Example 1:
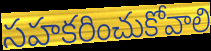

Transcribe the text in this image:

సహకరించుకోవాలి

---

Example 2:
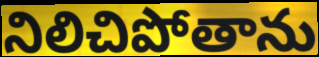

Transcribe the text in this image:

నిలిచిపోతాను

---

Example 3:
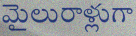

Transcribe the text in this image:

మైలురాళ్లుగా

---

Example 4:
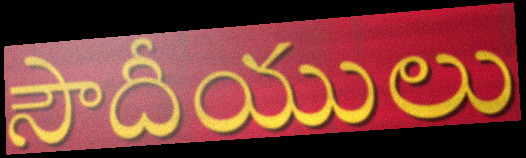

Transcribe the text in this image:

సౌదీయులు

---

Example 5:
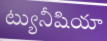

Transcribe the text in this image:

ట్యునీషియా